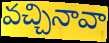
వచ్చినావా